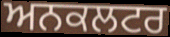
ਅਨਕਲਟਰ